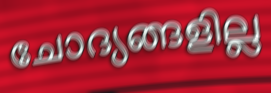
ചോദ്യങ്ങളില്ല